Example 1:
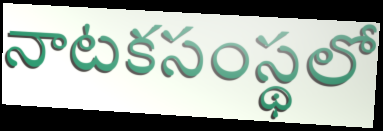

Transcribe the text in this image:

నాటకసంస్థలో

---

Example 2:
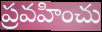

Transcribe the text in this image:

ప్రవహించు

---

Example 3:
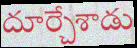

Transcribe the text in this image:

దూర్చేశాడు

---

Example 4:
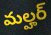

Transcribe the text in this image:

మల్హర్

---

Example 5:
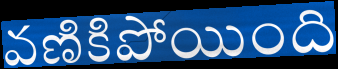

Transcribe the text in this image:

వణికిపోయింది